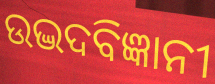
ଉଦ୍ଭଦବିଜ୍ଞାନୀ